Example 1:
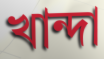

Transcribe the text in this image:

খান্দা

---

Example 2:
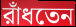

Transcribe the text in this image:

রাঁধতেন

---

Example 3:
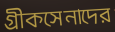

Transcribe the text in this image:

গ্রীকসেনাদের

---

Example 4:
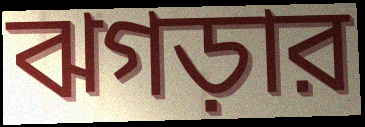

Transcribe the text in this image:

ঝগড়ার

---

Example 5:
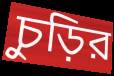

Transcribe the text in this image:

চুড়ির